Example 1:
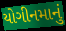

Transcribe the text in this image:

યોગીનમાનું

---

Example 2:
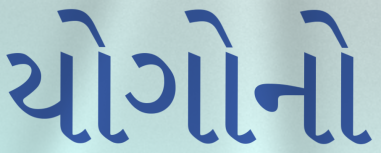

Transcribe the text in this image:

યોગોનો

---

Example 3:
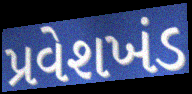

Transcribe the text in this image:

પ્રવેશખંડ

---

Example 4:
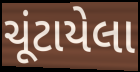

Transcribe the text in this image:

ચૂંટાયેલા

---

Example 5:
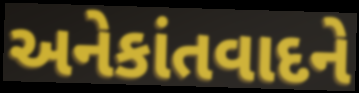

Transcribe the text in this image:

અનેકાંતવાદને